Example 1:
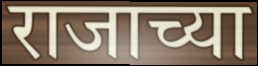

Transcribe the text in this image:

राजाच्या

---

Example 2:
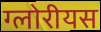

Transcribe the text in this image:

ग्लोरीयस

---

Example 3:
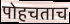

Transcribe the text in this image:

पोहचताच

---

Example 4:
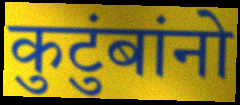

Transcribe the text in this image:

कुटुंबांनो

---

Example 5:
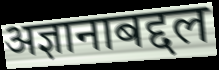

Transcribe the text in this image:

अज्ञानाबद्दल